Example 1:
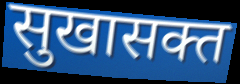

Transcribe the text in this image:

सुखासक्त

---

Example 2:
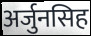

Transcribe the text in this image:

अर्जुनसिह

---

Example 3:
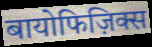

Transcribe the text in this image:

बायोफिज़िक्स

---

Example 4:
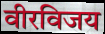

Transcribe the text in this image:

वीरविजय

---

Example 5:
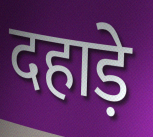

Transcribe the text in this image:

दहाड़े